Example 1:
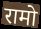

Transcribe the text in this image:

रामो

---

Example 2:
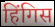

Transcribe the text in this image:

हिंगिस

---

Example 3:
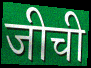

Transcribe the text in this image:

जीची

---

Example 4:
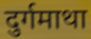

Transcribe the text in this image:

दुर्गमाथा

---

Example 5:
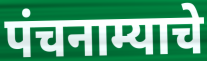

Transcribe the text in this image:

पंचनाम्याचे